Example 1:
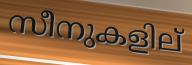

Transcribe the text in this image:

സീനുകളില്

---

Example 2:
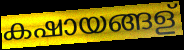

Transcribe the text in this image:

കഷായങ്ങള്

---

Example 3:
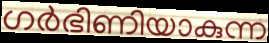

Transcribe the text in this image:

ഗർഭിണിയാകുന്ന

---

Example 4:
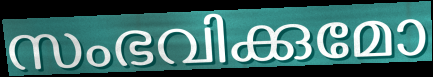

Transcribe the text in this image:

സംഭവിക്കുമോ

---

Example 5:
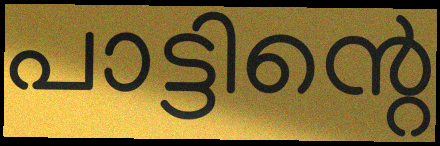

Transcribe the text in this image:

പാട്ടിന്റെ